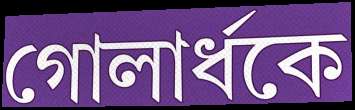
গোলার্ধকে